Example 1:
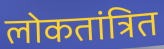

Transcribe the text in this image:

लोकतांत्रित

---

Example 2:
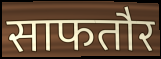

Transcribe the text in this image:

साफतौर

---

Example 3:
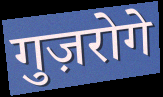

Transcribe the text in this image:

गुज़रोगे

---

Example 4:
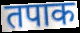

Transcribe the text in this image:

तपाक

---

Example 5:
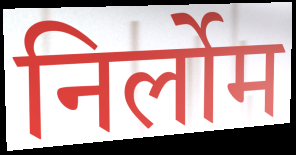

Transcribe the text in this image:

निर्लोम